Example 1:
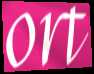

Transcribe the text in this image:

ort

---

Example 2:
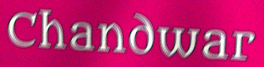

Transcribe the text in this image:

Chandwar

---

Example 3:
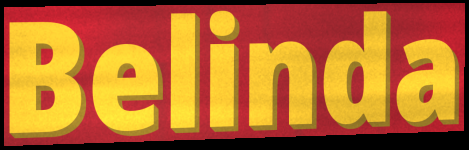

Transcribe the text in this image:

Belinda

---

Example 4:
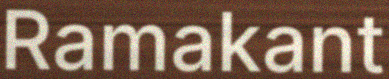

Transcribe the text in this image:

Ramakant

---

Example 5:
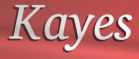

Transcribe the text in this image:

Kayes